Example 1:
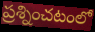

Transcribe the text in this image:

ప్రశ్నించటంలో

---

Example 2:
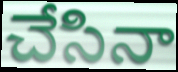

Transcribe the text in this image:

చేసినా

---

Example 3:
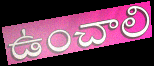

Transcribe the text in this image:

ఉంచాలి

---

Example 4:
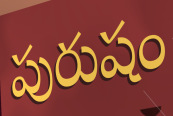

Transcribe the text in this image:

పురుషం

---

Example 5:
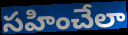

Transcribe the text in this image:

సహించేలా